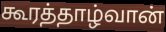
கூரத்தாழ்வான்